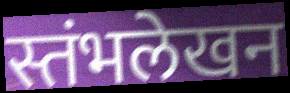
स्तंभलेखन